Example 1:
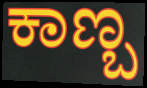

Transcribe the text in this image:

ಕಾಣ್ಬ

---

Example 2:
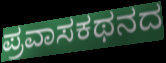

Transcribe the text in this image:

ಪ್ರವಾಸಕಥನದ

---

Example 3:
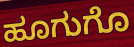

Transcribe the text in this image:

ಹೂಗುಗೊ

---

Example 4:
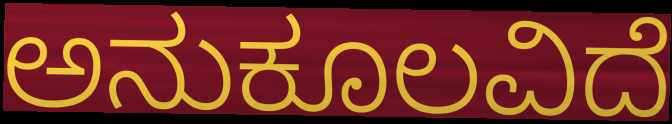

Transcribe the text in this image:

ಅನುಕೂಲವಿದೆ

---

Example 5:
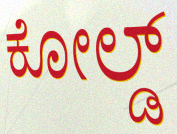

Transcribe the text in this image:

ಕೋಲ್ಡ್